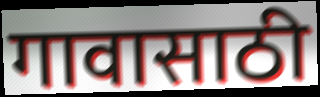
गावासाठी